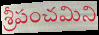
శ్రీపంచమిని